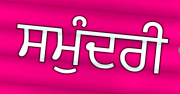
ਸਮੁੰਦਰੀ